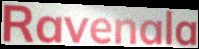
Ravenala